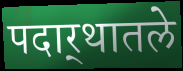
पदार्थातले